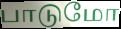
பாடுமோ